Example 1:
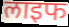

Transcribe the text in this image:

लाइफ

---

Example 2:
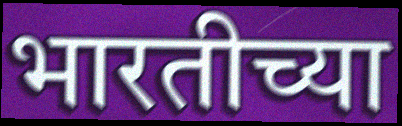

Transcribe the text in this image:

भारतीच्‍या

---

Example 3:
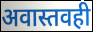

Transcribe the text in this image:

अवास्तवही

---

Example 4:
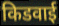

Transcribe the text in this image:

किडवाई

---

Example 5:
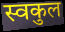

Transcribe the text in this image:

स्वकुल